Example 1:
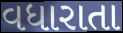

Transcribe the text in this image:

વધારાતા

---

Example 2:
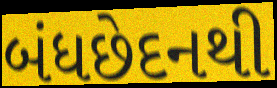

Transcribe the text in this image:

બંધછેદનથી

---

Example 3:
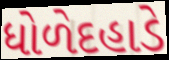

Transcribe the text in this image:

ધોળેદહાડે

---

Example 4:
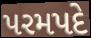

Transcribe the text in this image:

પરમપદે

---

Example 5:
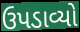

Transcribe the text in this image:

ઉપડાવ્યો